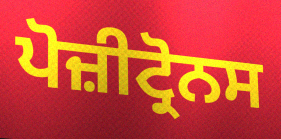
ਪੋਜ਼ੀਟ੍ਰੋਨਸ